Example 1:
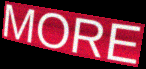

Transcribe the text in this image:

MORE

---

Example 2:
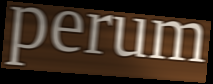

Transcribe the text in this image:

perum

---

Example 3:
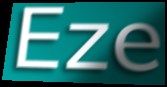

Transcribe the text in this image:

Eze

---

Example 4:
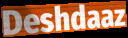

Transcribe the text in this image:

Deshdaaz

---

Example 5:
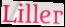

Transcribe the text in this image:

Liller